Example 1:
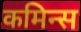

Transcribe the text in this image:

कमिन्स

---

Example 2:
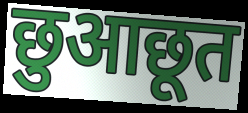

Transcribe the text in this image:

छुआछूत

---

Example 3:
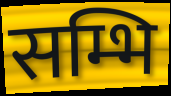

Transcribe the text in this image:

सम्भि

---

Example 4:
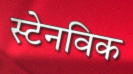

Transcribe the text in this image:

स्टेनविक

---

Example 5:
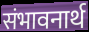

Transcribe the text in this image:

संभावनार्थ